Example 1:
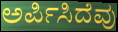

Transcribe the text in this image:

ಅರ್ಪಿಸಿದೆವು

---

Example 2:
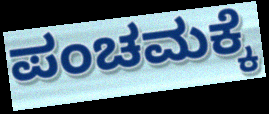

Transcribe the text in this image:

ಪಂಚಮಕ್ಕೆ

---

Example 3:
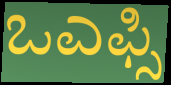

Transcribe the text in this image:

ಒಎಫ್ಸಿ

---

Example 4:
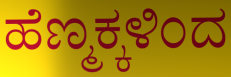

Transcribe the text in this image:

ಹೆಣ್ಮಕ್ಕಳಿಂದ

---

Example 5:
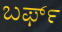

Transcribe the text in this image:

ಬರ್ಫ್